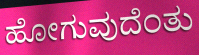
ಹೋಗುವುದೆಂತು